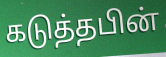
கடுத்தபின்